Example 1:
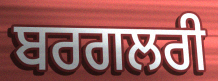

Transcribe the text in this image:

ਬਰਗਲਰੀ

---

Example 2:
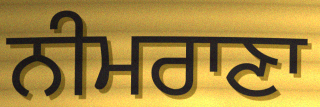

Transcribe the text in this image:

ਨੀਮਰਾਣਾ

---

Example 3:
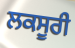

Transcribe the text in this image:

ਲਕਸੂਰੀ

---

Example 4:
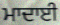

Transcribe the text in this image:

ਮਾਦਾਈ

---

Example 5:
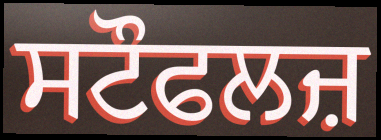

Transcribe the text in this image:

ਸਟੌਫਲਜ਼